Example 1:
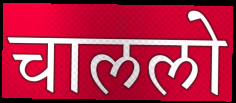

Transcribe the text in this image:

चाललो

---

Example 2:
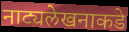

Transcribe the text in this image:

नाट्यलेखनाकडे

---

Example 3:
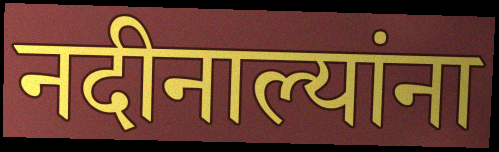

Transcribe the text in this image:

नदीनाल्यांना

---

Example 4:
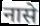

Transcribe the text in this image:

नासे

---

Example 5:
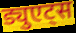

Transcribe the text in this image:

ड्युएट्स